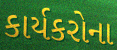
કાર્યકરોના